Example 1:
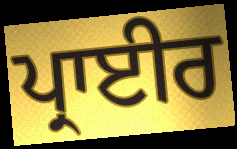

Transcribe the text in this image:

ਪ੍ਰਾਈਰ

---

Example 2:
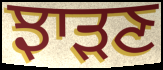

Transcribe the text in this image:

ਝਾੜਣ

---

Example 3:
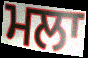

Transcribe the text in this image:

ਮਲਾ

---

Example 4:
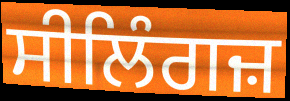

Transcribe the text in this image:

ਸੀਲਿੰਗਜ਼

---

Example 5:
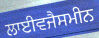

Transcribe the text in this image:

ਲਾਈਵਜੈਸਮੀਨ